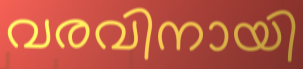
വരവിനായി